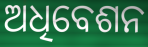
ଅଧିବେଶନ